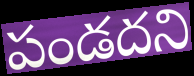
పండదని